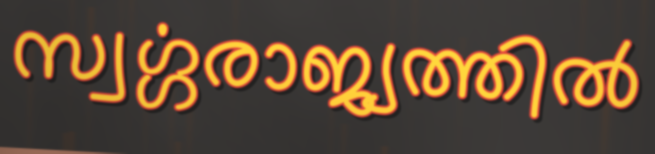
സ്വൎഗ്ഗരാജ്യത്തിൽ